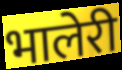
भालेरी